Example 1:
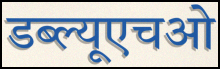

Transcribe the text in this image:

डब्ल्यूएचओ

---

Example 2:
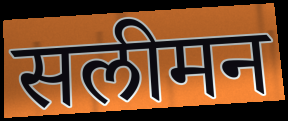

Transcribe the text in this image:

सलीमन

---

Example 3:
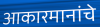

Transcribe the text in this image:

आकारमानांचे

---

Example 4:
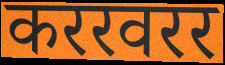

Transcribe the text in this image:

कररवरर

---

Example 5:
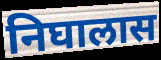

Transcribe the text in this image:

निघालास